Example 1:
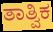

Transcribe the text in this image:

ತಾತ್ವಿಕ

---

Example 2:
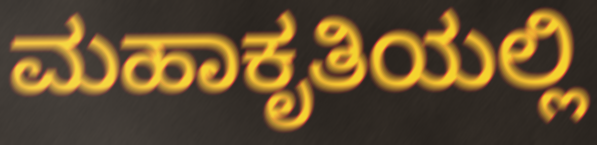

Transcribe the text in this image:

ಮಹಾಕೃತಿಯಲ್ಲಿ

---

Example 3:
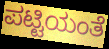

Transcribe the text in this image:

ಪಟ್ಟಿಯಂತೆ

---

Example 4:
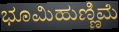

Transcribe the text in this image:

ಭೂಮಿಹುಣ್ಣಿಮೆ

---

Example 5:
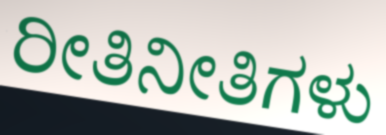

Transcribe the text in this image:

ರೀತಿನೀತಿಗಳು